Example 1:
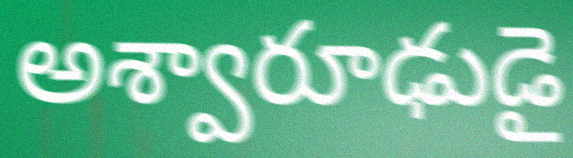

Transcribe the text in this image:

అశ్వారూఢుడై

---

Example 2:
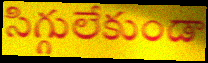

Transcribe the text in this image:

సిగ్గులేకుండా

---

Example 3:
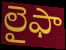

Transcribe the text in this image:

లైఫా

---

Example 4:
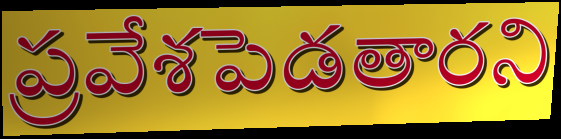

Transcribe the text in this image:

ప్రవేశపెడతారని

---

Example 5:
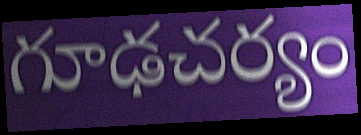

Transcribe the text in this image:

గూఢచర్యం